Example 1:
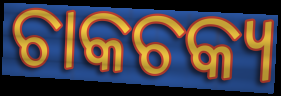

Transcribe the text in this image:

ଚାକଚକ୍ୟ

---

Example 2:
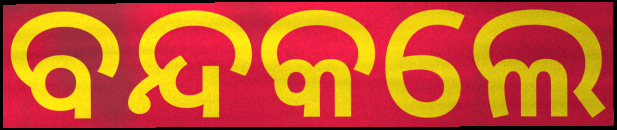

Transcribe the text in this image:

ବନ୍ଦକଲେ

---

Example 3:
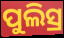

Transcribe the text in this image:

ପୁଲିସ୍ର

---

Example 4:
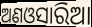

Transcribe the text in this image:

ଅଣଓସାରିଆ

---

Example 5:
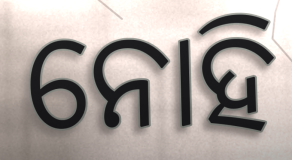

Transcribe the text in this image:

ନୋହି